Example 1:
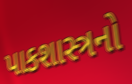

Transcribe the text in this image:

પાકશાસ્ત્રનો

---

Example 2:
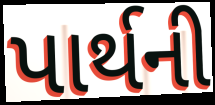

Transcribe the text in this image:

પાર્થની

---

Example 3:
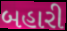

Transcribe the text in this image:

બહારી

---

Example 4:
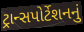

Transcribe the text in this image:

ટ્રાન્સપોર્ટેશનનું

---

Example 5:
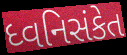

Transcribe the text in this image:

ધ્વનિસંકેત